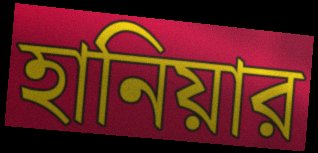
হানিয়ার